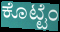
ಕೊಟ್ಟೆಂ